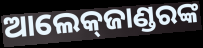
ଆଲେକ୍‌ଜାଣ୍ଡରଙ୍କ